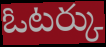
ఓటర్కు